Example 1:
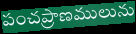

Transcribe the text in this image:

పంచప్రాణములును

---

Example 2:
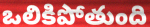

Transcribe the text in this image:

ఒలికిపోతుంది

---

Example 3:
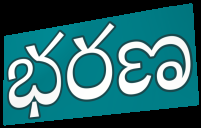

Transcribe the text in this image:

భరణ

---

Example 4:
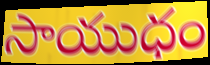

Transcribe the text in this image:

సాయుధం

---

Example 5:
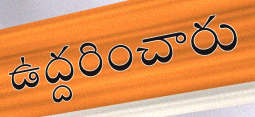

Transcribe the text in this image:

ఉద్దరించారు